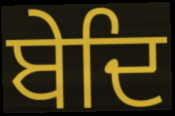
ਬੇਦਿ